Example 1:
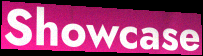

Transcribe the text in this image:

Showcase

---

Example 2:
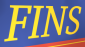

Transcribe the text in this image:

FINS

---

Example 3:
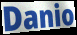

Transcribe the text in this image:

Danio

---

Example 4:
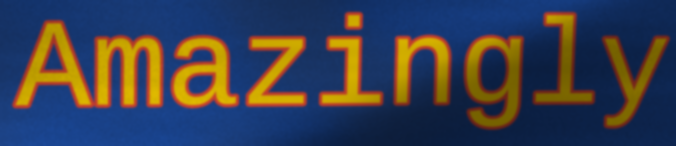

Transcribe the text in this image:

Amazingly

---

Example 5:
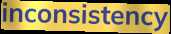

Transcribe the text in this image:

inconsistency